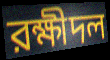
রক্ষীদল